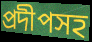
প্রদীপসহ